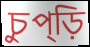
চুপ্‌ড়ি